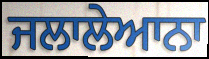
ਜਲਾਲੇਆਨਾ